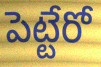
పెట్టేరో